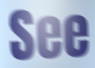
See